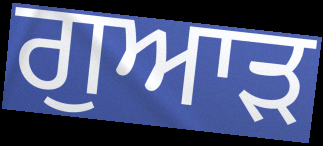
ਗੁਆੜ